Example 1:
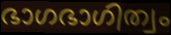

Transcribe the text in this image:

ഭാഗഭാഗിത്വം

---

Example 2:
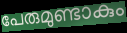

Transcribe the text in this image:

പേരുമുണ്ടാകും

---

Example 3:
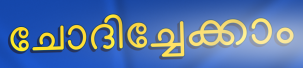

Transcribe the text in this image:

ചോദിച്ചേക്കാം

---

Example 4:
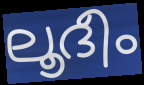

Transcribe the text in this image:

ലൂദീം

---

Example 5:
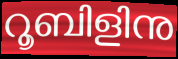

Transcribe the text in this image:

റൂബിളിനു